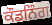
ਕੌਡਨਿੰਗ